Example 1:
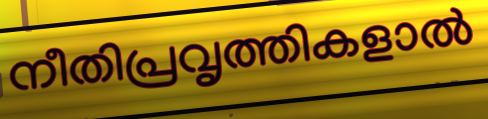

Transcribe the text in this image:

നീതിപ്രവൃത്തികളാൽ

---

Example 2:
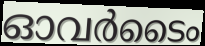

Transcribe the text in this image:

ഓവർടൈം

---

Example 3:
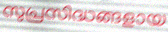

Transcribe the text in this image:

സുപ്രസിദ്ധങ്ങളായ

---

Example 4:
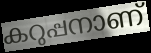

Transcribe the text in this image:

കറുപ്പനാണ്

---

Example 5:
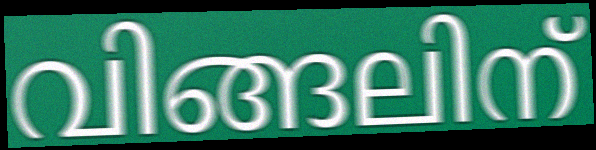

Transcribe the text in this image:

വിങ്ങലിന്